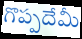
గొప్పదేమీ